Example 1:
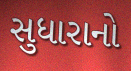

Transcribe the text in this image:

સુધારાનો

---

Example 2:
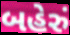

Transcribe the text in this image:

બહેરું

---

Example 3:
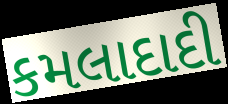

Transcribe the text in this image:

કમલાદાદી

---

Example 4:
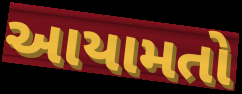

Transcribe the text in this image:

આયામતો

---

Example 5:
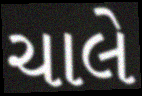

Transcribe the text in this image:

ચાલે